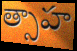
త్సాహ